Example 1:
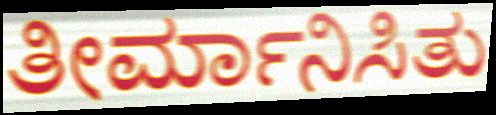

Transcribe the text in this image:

ತೀರ್ಮಾನಿಸಿತು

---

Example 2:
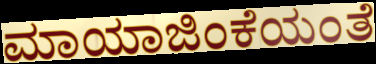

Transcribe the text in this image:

ಮಾಯಾಜಿಂಕೆಯಂತೆ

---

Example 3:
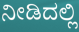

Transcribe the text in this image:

ನೀಡಿದಲ್ಲಿ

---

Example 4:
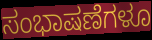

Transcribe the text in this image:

ಸಂಭಾಷಣೆಗಳೂ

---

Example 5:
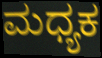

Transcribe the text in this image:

ಮಧ್ಯಕ